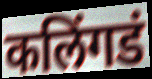
कलिंगडं